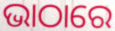
ଭାଠାରେ